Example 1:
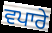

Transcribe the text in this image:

ਵਪਾਰੇ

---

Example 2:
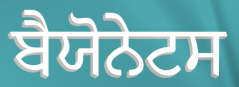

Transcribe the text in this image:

ਬੈਯੋਨੇਟਸ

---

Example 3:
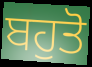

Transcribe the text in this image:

ਬਹੁਤੋ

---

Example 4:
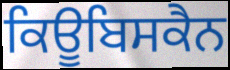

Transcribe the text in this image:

ਕਿਊਬਿਸਕੈਨ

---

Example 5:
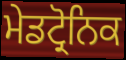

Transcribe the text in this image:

ਮੇਡਟ੍ਰੋਨਿਕ